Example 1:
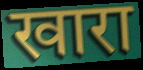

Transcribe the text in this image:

खारा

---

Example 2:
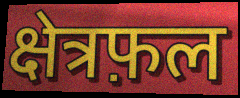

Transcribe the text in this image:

क्षेत्रफ़ल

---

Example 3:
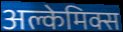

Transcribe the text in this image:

अल्केमिक्स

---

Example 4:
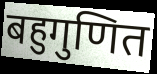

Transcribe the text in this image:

बहुगुणित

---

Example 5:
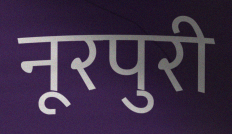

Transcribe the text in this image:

नूरपुरी